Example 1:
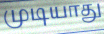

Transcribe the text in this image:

முடியாது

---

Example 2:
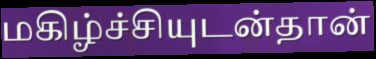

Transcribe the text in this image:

மகிழ்ச்சியுடன்தான்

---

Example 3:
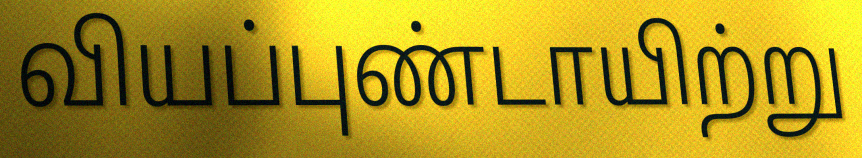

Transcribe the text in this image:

வியப்புண்டாயிற்று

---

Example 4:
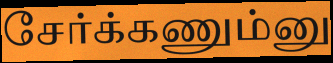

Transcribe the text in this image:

சேர்க்கணும்னு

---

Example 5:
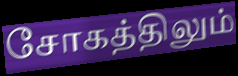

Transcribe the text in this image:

சோகத்திலும்